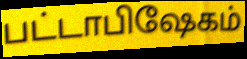
பட்டாபிஷேகம்